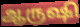
ஆருஷி